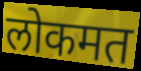
लोकमत